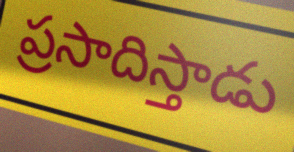
ప్రసాదిస్తాడు